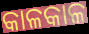
କାଳକାଳ